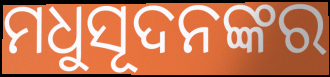
ମଧୁସୂଦନଙ୍କର